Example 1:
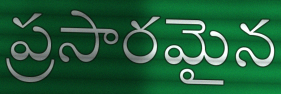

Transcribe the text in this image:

ప్రసారమైన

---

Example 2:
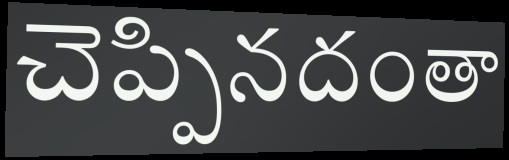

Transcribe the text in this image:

చెప్పినదంతా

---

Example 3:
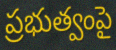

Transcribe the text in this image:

ప్రభుత్వంపై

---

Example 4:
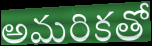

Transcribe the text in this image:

అమరికతో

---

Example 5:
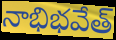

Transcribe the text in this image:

నాభిభవేత్